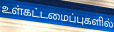
உள்கட்டமைப்புகளில்